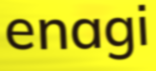
enagi